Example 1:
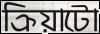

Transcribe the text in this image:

ক্ৰিয়াটো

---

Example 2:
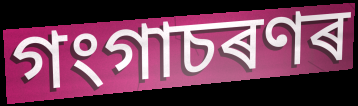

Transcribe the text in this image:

গংগাচৰণৰ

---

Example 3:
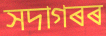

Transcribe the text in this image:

সদাগৰৰ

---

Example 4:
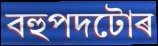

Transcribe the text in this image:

বহুপদটোৰ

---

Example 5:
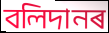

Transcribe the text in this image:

বলিদানৰ